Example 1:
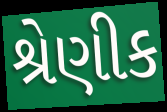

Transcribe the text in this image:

શ્રેણીક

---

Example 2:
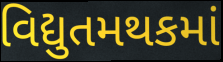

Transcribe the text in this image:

વિદ્યુતમથકમાં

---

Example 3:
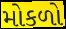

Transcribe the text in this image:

મોકળો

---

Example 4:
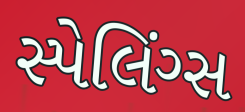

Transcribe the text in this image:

સ્પેલિંગ્સ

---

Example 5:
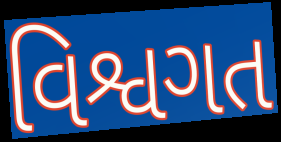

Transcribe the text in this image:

વિશ્વગત